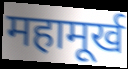
महामूर्ख